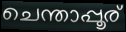
ചെന്താപ്പൂര്